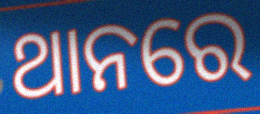
ଥାନରେ